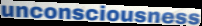
unconsciousness